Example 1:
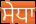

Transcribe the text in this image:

ਸੇਧਾ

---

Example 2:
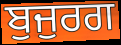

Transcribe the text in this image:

ਬੁਜੁਰਗ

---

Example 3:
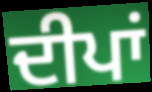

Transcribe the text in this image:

ਦੀਪਾਂ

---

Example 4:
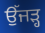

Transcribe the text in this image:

ਉੱਜੜ੍ਹ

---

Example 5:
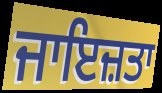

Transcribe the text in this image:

ਜਾਇਜ਼ਤਾ